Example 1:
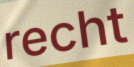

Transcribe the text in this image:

recht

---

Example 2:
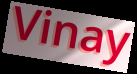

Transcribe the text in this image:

Vinay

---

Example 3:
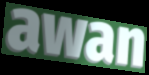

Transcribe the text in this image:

awan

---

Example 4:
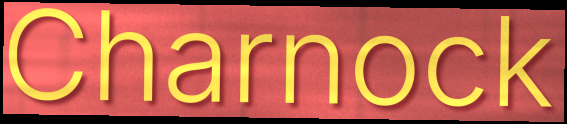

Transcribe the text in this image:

Charnock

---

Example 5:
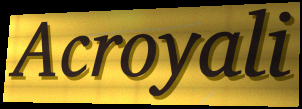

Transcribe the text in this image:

Acroyali